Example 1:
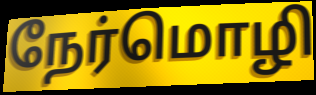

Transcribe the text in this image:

நேர்மொழி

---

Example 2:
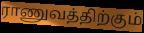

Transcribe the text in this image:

ராணுவத்திற்கும்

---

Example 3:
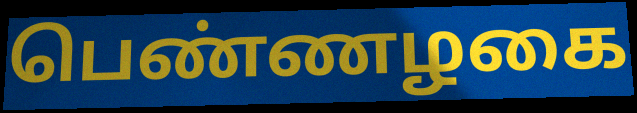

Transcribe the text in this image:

பெண்ணழகை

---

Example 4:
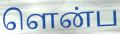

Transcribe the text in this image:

ளென்ப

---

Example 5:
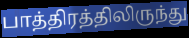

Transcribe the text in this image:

பாத்திரத்திலிருந்து